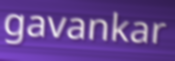
gavankar